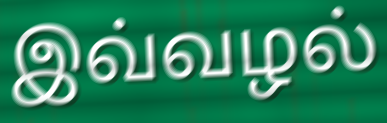
இவ்வழல்